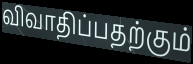
விவாதிப்பதற்கும்